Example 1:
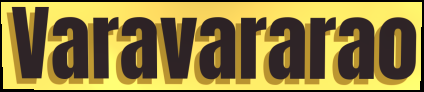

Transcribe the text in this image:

Varavararao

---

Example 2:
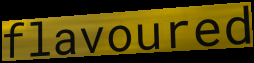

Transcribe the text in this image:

flavoured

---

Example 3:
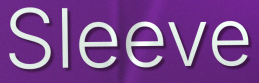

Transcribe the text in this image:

Sleeve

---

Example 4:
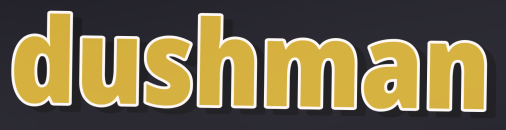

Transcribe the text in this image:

dushman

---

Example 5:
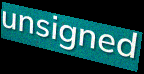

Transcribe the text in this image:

unsigned